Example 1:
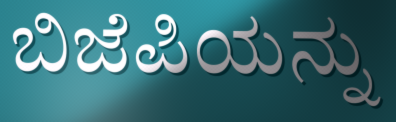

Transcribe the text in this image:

ಬಿಜೆಪಿಯನ್ನು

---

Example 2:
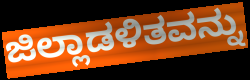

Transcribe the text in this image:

ಜಿಲ್ಲಾಡಳಿತವನ್ನು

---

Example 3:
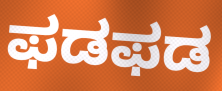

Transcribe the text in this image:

ಫಡಫಡ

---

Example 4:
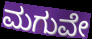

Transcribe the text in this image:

ಮಗುವೇ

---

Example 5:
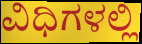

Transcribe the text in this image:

ವಿಧಿಗಳಲ್ಲಿ